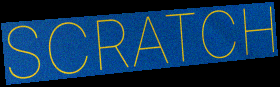
SCRATCH